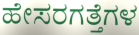
ಹೇಸರಗತ್ತೆಗಳ